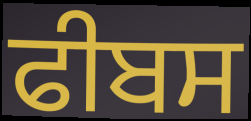
ਫੀਬਸ